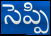
సెప్పి